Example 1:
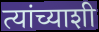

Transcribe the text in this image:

त्यांच्याशी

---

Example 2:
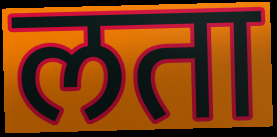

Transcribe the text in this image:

लता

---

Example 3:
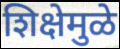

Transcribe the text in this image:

शिक्षेमुळे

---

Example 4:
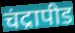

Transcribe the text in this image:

चंद्रापीड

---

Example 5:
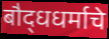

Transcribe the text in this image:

बौद्धधर्माचे